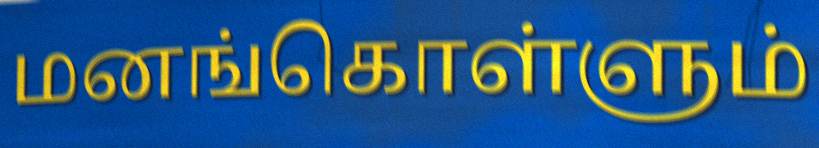
மனங்கொள்ளும்